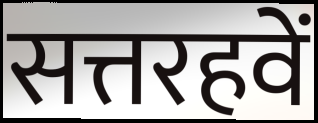
सत्तरहवें